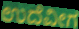
ಉದೆವೀಗ